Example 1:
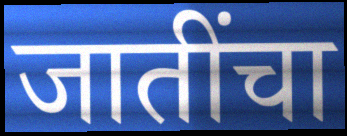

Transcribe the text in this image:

जातींचा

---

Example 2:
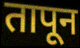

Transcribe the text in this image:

तापून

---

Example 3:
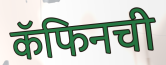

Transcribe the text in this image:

कॅफिनची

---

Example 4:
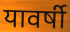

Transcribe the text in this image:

यावर्षी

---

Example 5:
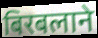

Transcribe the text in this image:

बिरबलाने